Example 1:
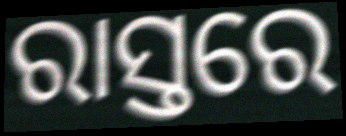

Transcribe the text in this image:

ରାସ୍ତରେ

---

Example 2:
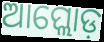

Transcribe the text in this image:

ଆପ୍ଲୋଡ଼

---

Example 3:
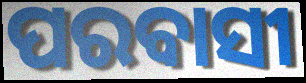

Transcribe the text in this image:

ପରବାସୀ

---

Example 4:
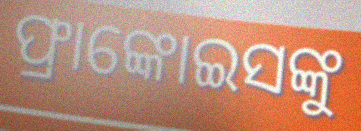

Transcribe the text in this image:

ଫ୍ରାଙ୍କୋଇସଙ୍କୁ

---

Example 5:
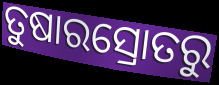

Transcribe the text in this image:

ତୁଷାରସ୍ରୋତରୁ